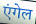
एंगेल